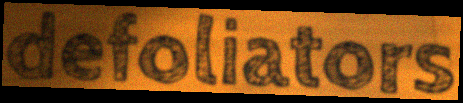
defoliators